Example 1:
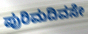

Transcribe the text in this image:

ಪುರಿಮದಿವಸೇ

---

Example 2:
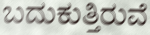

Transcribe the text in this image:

ಬದುಕುತ್ತಿರುವೆ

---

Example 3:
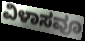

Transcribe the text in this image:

ವಿಳಾಸವೂ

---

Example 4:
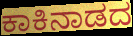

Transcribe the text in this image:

ಕಾಕಿನಾಡದ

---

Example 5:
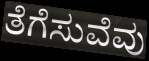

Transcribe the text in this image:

ತೆಗೆಸುವೆವು